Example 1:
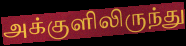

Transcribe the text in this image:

அக்குளிலிருந்து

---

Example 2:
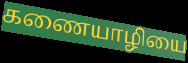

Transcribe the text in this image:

கணையாழியை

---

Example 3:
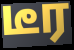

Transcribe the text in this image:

டீர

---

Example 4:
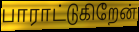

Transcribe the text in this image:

பாராட்டுகிறேன்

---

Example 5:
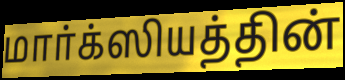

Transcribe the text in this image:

மார்க்ஸியத்தின்